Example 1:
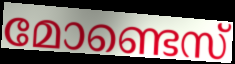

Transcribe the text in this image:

മോണ്ടെസ്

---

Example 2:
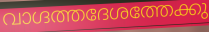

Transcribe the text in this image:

വാഗ്ദത്തദേശത്തേക്കു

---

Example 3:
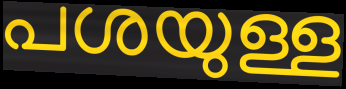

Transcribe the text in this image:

പശയുള്ള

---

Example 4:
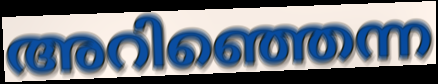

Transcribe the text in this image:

അറിഞ്ഞെന്ന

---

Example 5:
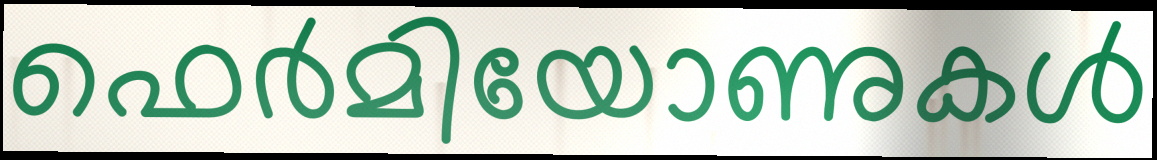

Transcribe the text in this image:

ഫെർമിയോണുകൾ